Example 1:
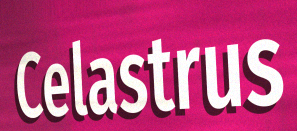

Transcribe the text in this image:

Celastrus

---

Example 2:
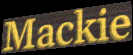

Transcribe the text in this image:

Mackie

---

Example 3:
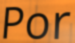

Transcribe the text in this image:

Por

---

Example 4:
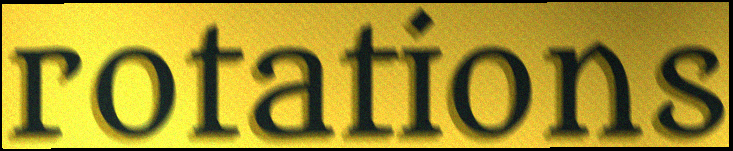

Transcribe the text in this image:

rotations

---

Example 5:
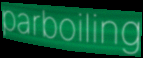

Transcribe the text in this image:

parboiling